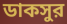
ডাকসুর